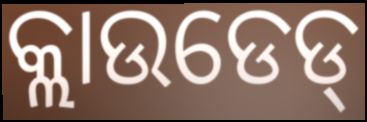
କ୍ଲାଉଡେଡ୍